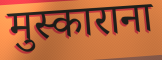
मुस्काराना